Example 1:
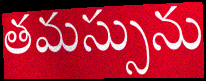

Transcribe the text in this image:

తమస్సును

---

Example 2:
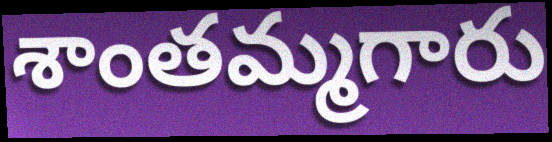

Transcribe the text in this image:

శాంతమ్మగారు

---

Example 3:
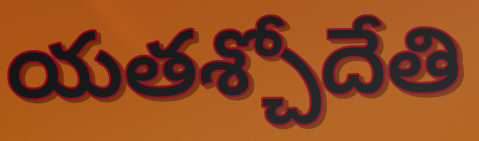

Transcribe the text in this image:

యతశ్చోదేతి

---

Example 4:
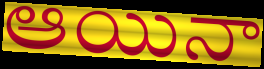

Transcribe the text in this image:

ఆయినా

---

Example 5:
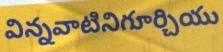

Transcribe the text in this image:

విన్నవాటినిగూర్చియు